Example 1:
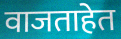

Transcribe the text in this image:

वाजताहेत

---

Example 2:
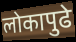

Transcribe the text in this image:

लोकापुढे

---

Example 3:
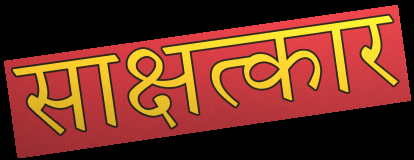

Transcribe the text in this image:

साक्षत्कार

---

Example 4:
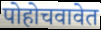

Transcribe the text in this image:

पोहोचवावेत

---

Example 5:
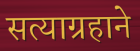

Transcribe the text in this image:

सत्याग्रहाने